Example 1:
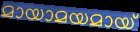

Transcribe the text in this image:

മായാമയമായ്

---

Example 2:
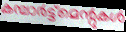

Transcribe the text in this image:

കമ്പാർട്ട്മെന്റുകൾ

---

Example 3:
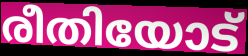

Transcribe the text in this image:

രീതിയോട്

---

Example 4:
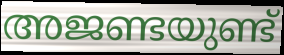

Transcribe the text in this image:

അജണ്ടയുണ്ട്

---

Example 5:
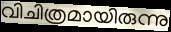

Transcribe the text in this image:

വിചിത്രമായിരുന്നു